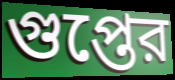
গুপ্তের